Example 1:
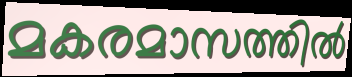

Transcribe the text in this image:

മകരമാസത്തിൽ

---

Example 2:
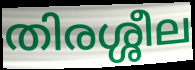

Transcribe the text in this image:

തിരശ്ശീല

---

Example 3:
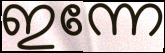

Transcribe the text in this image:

ഇന്നേ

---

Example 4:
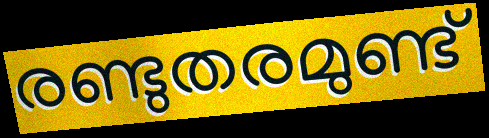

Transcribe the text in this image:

രണ്ടുതരമുണ്ട്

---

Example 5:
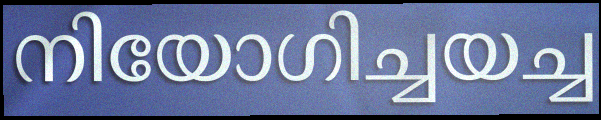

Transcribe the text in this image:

നിയോഗിച്ചയച്ച